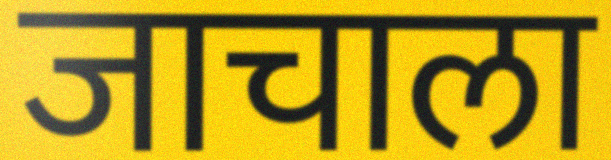
जाचाला